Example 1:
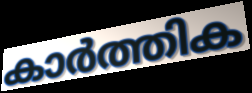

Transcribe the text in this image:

കാർത്തിക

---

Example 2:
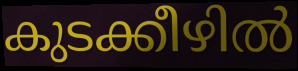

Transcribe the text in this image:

കുടക്കീഴിൽ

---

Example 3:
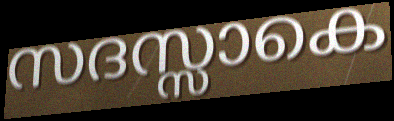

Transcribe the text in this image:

സദസ്സാകെ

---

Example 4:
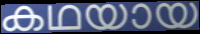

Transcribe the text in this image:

കഥയായ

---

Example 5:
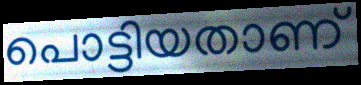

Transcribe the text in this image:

പൊട്ടിയതാണ്